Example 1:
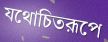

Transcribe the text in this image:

যথোচিতরূপে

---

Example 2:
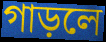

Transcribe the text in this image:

গাড়লে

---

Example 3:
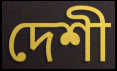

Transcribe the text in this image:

দেশী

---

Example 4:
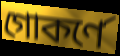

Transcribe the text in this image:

গোকর্ণে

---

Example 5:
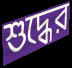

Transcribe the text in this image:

শুদ্ধের